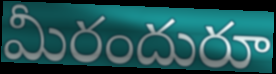
మీరందురూ